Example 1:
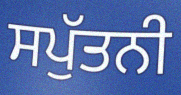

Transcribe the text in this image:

ਸਪੁੱਤਨੀ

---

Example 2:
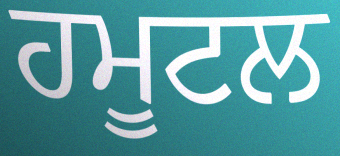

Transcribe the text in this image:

ਹਮੂਟਲ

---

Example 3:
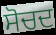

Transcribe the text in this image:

ਸੋਚਦ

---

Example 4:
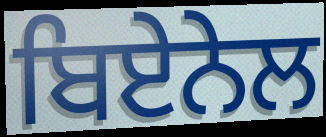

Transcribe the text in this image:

ਬਿਏਨੇਲ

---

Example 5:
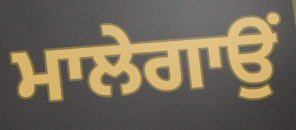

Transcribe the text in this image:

ਮਾਲੇਗਾਉਂ